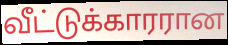
வீட்டுக்காரரான